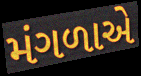
મંગળાએ